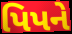
પિપને